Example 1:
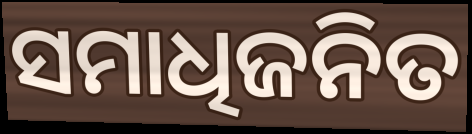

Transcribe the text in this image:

ସମାଧିଜନିତ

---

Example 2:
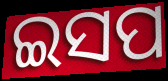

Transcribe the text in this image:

ଇସପ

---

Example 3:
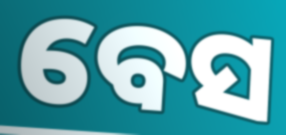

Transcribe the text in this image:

ବେସ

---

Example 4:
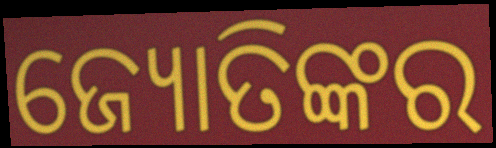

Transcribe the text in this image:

ଜ୍ୟୋତିଙ୍କର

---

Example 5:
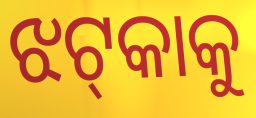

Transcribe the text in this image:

ଝଟ୍‌କାକୁ